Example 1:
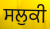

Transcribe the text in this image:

ਸਲੁਕੀ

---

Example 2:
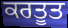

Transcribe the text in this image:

ਕਰਤੂਤ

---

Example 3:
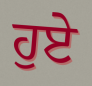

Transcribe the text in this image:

ਹੁਏ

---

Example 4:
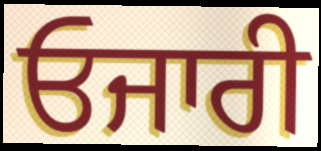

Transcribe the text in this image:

ਓਜਾਰੀ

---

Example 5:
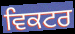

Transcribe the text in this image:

ਵਿਕਟਰ